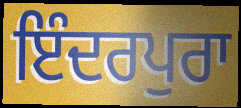
ਇੰਦਰਪੁਰਾ